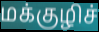
மக்குழிச்